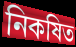
নিকষিত